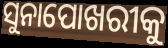
ସୁନାପୋଖରୀକୁ